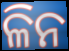
ଳିନ